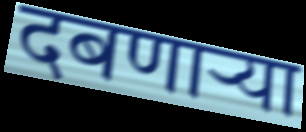
दबणाऱ्या